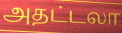
அதட்டலா